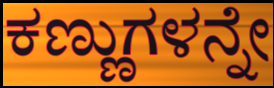
ಕಣ್ಣುಗಳನ್ನೇ